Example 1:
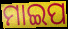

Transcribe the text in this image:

ମାଇପ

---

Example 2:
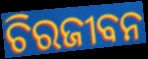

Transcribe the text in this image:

ଚିରଜୀବନ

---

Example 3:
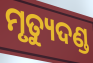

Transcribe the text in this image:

ମୃତ୍ୟୁଦଣ୍ଡ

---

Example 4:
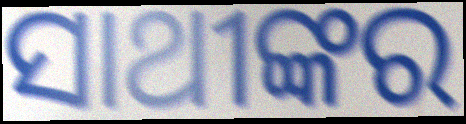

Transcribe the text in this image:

ସାଥୀଙ୍କର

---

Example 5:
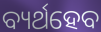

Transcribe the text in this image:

ବ୍ୟର୍ଥହେବ